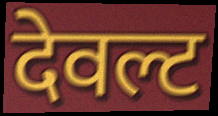
देवल्ट